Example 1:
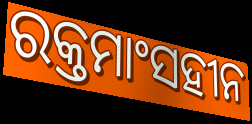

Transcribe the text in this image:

ରକ୍ତମାଂସହୀନ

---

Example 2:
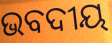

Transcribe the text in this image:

ଭବଦୀୟ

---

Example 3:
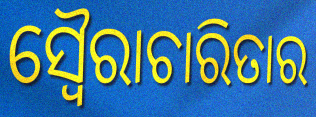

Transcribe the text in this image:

ସ୍ୱୈରାଚାରିତାର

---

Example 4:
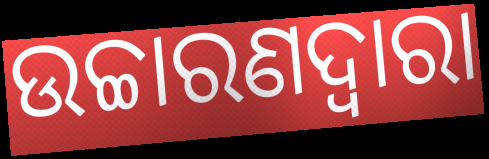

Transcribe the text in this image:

ଉଚ୍ଚାରଣଦ୍ଵାରା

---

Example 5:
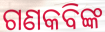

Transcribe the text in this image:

ଗଣକବିଙ୍କ